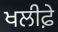
ਖਲੀਫ਼ੇ